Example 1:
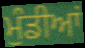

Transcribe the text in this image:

ਮੁੰਡੀਆਂ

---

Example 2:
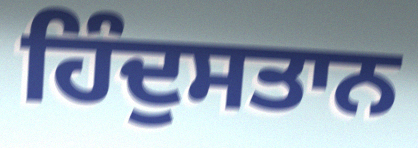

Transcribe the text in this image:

ਹਿੰਦੁਸਤਾਨ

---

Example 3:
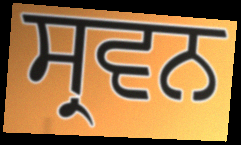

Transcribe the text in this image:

ਸ੍ਰਵਨ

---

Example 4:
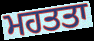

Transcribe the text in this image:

ਮਹਤਤਾ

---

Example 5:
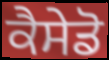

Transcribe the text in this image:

ਕੈਸੇਡੋ